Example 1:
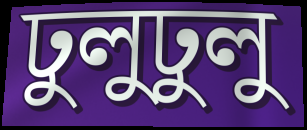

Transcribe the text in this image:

ঢুলুঢুলু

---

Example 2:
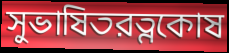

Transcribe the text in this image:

সুভাষিতরত্নকোষ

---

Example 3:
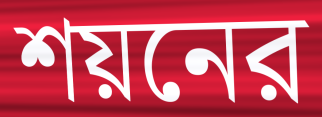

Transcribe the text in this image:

শয়নের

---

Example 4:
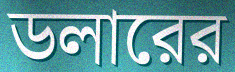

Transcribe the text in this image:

ডলারের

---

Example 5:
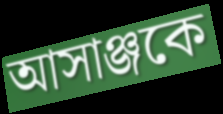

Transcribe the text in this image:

আসাঞ্জকে